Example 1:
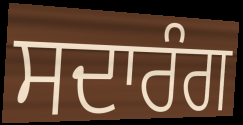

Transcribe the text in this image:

ਸਦਾਰੰਗ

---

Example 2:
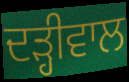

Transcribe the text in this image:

ਦੜ੍ਹੀਵਾਲ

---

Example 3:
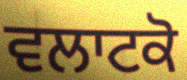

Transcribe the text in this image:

ਵਲਾਟਕੋ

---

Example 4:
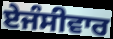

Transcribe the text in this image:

ਏਜੰਸੀਵਾਰ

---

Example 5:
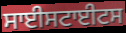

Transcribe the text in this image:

ਸਾਈਸਟਾਈਟਸ